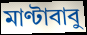
মাণ্টাবাবু